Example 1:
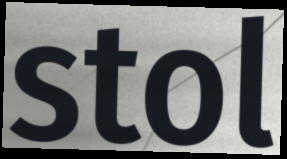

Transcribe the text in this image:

stol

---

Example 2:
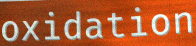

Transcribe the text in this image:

oxidation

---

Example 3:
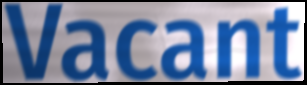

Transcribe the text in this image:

Vacant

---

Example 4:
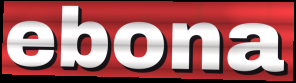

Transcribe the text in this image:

ebona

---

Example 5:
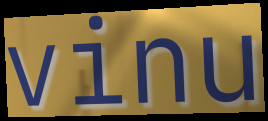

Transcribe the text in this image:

vinu